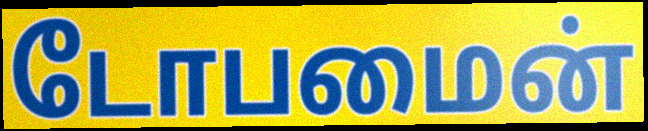
டோபமைன்